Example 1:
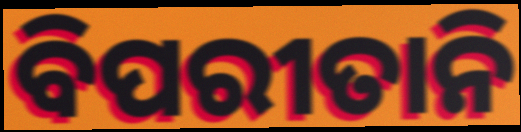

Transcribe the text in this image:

ବିପରୀତାନି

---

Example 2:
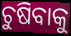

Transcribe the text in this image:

ଚୁଷିବାକୁ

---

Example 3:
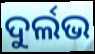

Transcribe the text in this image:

ଦୁର୍ଲଭ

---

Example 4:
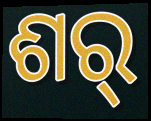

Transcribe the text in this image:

ଶର୍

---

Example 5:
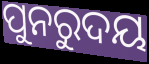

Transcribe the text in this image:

ପୁନରୁଦୟ